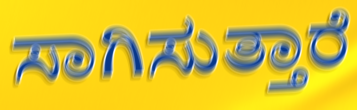
ಸಾಗಿಸುತ್ತಾರೆ